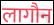
लागौन